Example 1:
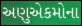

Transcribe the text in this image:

અણુએકમોના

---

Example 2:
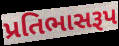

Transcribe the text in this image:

પ્રતિભાસરૂપ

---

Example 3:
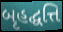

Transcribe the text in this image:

બૃહદ્ઘત્તિ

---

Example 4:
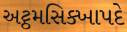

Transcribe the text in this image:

અટ્ઠમસિક્ખાપદે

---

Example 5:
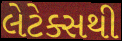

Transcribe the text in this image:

લેટેક્સથી